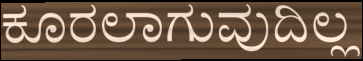
ಕೂರಲಾಗುವುದಿಲ್ಲ